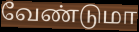
வேண்டுமா